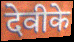
देवीके